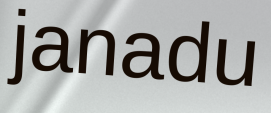
janadu